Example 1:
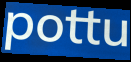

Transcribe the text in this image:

pottu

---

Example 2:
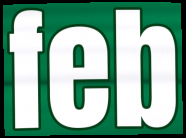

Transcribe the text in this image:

feb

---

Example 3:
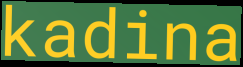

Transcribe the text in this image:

kadina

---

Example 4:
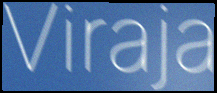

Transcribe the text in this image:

Viraja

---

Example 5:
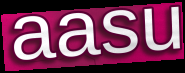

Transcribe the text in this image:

aasu